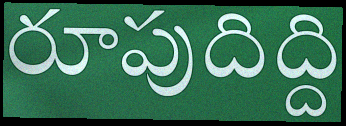
రూపుదిద్ది